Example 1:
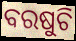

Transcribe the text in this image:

ବରଷୁଚି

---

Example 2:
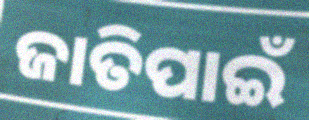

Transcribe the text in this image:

ଜାତିପାଇଁ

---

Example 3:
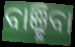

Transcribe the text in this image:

ବାଞ୍ଛିବା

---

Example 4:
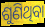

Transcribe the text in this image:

ଶୁଣିଥିବା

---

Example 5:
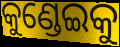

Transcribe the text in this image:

କୁଣ୍ଡେଇକୁ